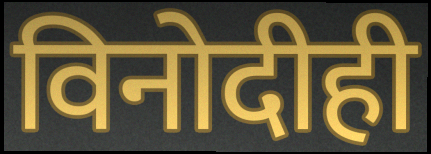
विनोदीही